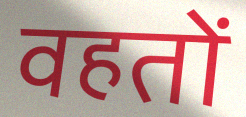
वहतों